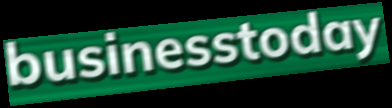
businesstoday